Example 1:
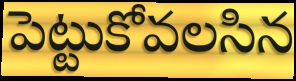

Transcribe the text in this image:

పెట్టుకోవలసిన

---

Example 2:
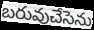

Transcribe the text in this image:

బరువుచేసెను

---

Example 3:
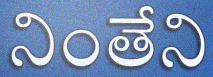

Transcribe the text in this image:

నింతేని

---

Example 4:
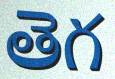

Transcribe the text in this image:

తెగ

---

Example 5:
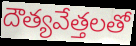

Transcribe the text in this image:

దౌత్యవేత్తలతో